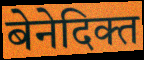
बेनेदिक्त